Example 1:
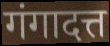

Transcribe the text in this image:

गंगादत्त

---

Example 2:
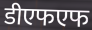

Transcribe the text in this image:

डीएफएफ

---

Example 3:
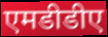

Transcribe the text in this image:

एमडीडीए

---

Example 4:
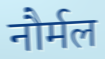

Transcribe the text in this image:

नौर्मल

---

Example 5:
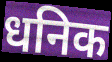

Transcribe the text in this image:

धनिक